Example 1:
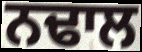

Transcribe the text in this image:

ਨਢਾਲ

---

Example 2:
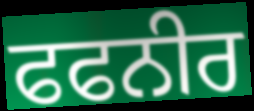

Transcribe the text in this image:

ਫਫਨੀਰ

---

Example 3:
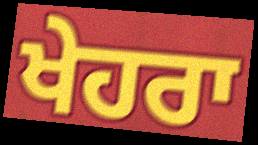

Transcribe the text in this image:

ਖੇਹਰਾ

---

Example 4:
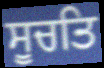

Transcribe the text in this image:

ਸੂਚਤਿ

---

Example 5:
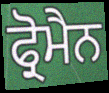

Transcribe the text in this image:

ਫ੍ਰੋਮੈਨ